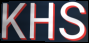
KHS